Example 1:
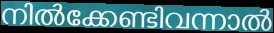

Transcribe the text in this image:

നിൽക്കേണ്ടിവന്നാൽ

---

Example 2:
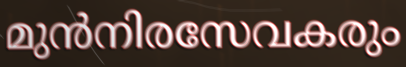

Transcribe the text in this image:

മുൻനിരസേവകരും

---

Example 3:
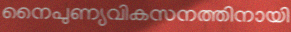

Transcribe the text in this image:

നൈപുണ്യവികസനത്തിനായി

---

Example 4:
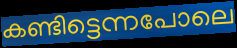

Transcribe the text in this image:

കണ്ടിട്ടെന്നപോലെ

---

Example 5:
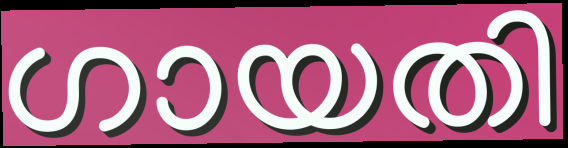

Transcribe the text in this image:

ഗായതി